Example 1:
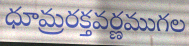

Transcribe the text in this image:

ధూమ్రరక్తవర్ణముగల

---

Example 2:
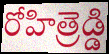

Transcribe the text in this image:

రోహిత్రెడ్డి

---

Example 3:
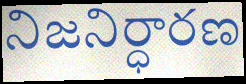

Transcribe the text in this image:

నిజనిర్ధారణ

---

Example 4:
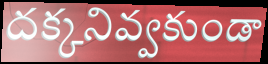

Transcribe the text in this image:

దక్కనివ్వకుండా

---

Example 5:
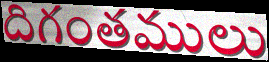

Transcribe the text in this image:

దిగంతములు